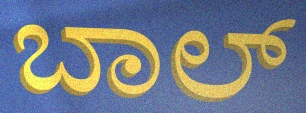
ಬಾಲ್